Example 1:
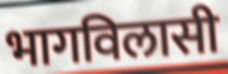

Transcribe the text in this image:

भागविलासी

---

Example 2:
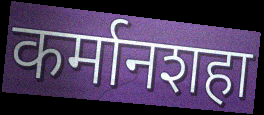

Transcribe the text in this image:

कर्मानशहा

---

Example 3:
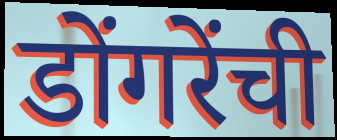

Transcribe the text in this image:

डोंगरेंची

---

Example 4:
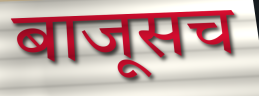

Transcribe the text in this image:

बाजूसच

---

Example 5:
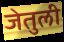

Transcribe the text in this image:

जेतुली